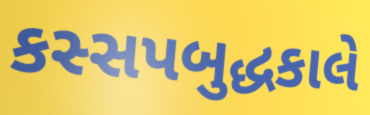
કસ્સપબુદ્ધકાલે